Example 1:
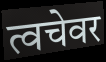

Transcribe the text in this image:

त्वचेवर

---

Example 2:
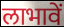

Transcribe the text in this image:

लाभावें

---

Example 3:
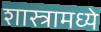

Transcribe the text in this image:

शास्त्रामध्ये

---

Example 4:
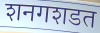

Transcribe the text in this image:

शनगशडत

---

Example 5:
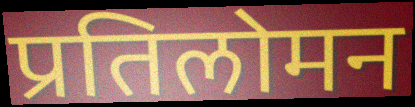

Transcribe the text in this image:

प्रतिलोमन